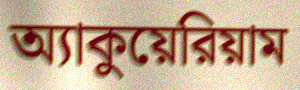
অ্যাকুয়েরিয়াম